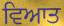
ਵਿਆਤ